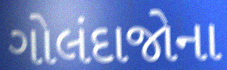
ગોલંદાજોના